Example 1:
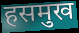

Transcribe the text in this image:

हसमुख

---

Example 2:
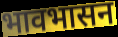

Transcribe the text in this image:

भावभासन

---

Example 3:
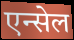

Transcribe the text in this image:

एन्सेल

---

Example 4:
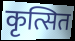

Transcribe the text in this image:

कृत्सित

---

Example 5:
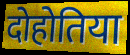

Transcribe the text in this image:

दोहोतिया